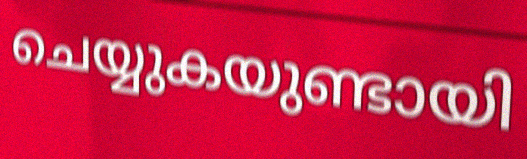
ചെയ്യുകയുണ്ടായി